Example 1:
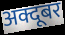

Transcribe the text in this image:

अक्दूबर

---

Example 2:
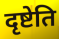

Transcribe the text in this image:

दृष्टेति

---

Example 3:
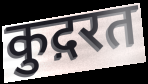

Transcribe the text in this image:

कुद़रत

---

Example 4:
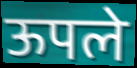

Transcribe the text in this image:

ऊपले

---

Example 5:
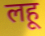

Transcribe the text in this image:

लहू